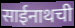
साईनाथची